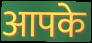
आपके